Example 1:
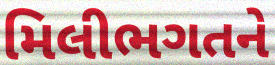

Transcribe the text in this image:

મિલીભગતને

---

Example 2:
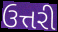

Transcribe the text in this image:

ઉત્તરી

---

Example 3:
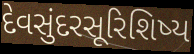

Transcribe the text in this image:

દેવસુંદરસૂરિશિષ્ય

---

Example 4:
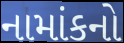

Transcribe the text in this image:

નામાંકનો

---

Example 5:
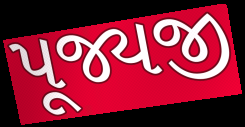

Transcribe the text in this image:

પૂજ્યજી